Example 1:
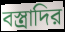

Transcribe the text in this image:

বস্ত্রাদির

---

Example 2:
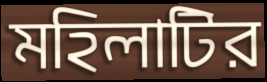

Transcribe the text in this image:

মহিলাটির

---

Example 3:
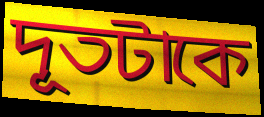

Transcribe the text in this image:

দূতটাকে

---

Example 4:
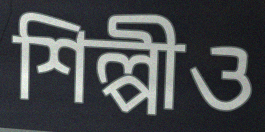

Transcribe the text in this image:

শিল্পীও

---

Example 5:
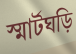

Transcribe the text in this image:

স্মার্টঘড়ি